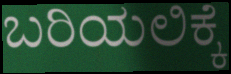
ಬರಿಯಲಿಕ್ಕೆ